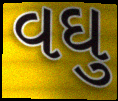
વઘુ